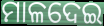
ମାଳଦେଇ